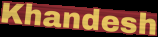
Khandesh